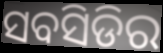
ସବସିଡିର